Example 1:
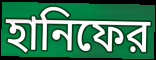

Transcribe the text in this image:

হানিফের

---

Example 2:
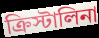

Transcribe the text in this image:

ক্রিস্টালিনা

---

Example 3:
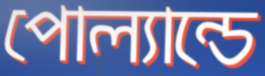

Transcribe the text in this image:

পোল্যান্ডে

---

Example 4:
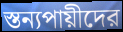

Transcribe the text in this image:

স্তন্যপায়ীদের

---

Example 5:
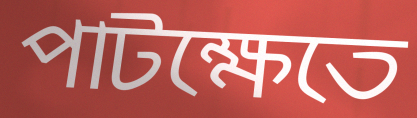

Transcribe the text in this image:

পাটক্ষেতে